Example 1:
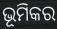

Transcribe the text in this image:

ଭୂମିକର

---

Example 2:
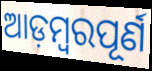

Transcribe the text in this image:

ଆଡ଼ମ୍ବରପୂର୍ଣ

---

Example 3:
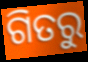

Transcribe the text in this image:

ଗିତରୁ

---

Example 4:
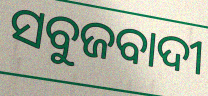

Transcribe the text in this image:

ସବୁଜବାଦୀ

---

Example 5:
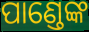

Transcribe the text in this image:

ପାଣ୍ଡେଙ୍କ